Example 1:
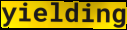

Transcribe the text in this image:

yielding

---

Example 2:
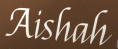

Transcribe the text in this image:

Aishah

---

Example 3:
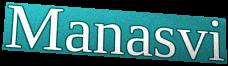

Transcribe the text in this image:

Manasvi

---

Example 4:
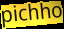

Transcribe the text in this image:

pichho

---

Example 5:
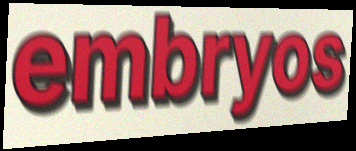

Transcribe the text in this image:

embryos